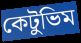
কেটুভিম